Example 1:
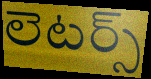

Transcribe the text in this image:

లెటర్స్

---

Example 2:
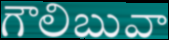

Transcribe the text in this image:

గౌలిబువా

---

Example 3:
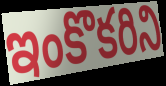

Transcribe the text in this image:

ఇంకొకరిని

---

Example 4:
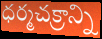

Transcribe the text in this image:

ధర్మచక్రాన్ని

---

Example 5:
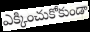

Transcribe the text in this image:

ఎక్కించుకోకుండా